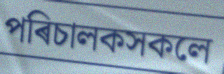
পৰিচালকসকলে